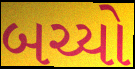
બચ્યો